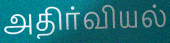
அதிர்வியல்